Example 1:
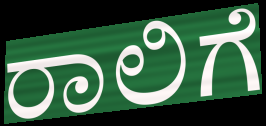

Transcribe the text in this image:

ರಾಲಿಗೆ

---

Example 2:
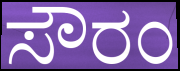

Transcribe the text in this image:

ಸೌರಂ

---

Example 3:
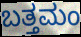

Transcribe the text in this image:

ಬತ್ತಮಂ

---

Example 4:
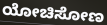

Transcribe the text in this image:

ಯೋಚಿಸೋಣ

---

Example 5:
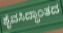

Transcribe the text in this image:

ಶೈವಸಿದ್ಧಾಂತದ